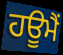
ਹਊਮੈਂ